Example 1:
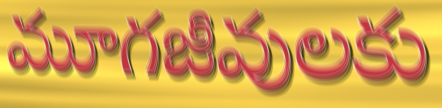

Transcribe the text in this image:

మూగజీవులకు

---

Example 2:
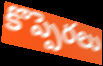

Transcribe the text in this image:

కొప్పెరలు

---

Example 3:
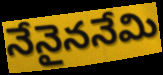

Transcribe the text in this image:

నేనైననేమి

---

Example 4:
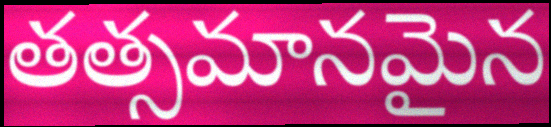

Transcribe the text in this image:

తత్సమానమైన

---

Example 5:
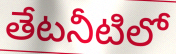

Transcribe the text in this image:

తేటనీటిలో